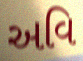
અવિ